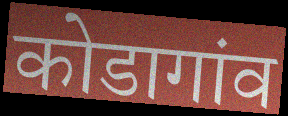
कोडागांव